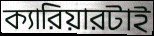
ক্যারিয়ারটাই